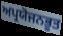
ਅਪ੍ਰਯੋਜਨਭੂਤ